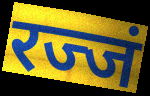
रज्जं